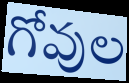
గోవుల